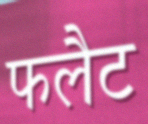
फलैट